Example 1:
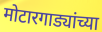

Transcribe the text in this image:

मोटारगाड्यांच्या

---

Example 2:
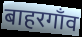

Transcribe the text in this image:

बाहरगाँव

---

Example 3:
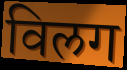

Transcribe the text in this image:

विलग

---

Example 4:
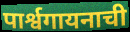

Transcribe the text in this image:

पार्श्वगायनाची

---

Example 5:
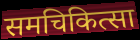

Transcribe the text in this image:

समचिकित्सा